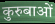
कुरुबाओं